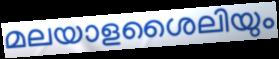
മലയാളശൈലിയും